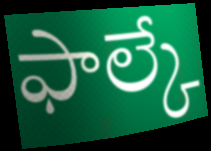
ఫాల్కే